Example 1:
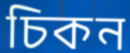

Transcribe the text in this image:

চিকন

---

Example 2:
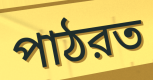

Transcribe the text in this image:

পাঠরত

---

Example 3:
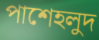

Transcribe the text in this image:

পাশেহলুদ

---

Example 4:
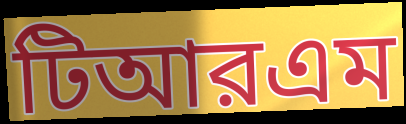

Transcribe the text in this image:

টিআরএম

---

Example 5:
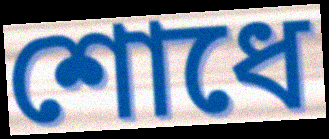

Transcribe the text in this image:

শোধে